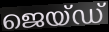
ജെയ്ഡ്